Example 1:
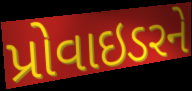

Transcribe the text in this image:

પ્રોવાઇડરને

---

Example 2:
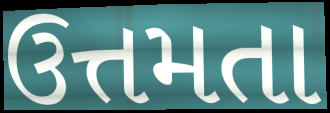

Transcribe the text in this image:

ઉત્તમતા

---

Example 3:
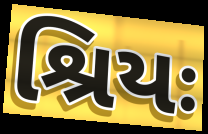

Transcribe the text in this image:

શ્રિયઃ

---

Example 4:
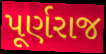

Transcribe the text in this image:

પૂર્ણરાજ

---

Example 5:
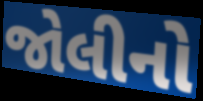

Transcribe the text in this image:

જોલીનો